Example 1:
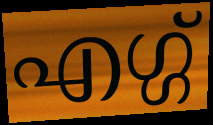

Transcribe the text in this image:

എഗ്ഗ്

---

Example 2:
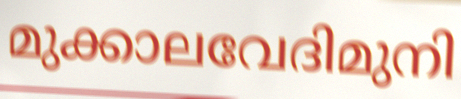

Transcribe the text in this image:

മുക്കാലവേദിമുനി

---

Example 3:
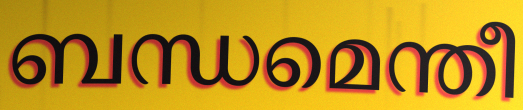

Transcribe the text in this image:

ബന്ധമെന്തീ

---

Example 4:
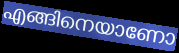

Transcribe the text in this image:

എങ്ങിനെയാണോ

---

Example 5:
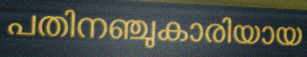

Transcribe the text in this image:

പതിനഞ്ചുകാരിയായ